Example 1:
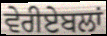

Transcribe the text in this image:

ਵੇਰੀਏਬਲਾਂ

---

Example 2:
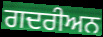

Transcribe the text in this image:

ਗਦਰੀਅਨ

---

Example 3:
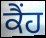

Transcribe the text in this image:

ਕੈਂਹ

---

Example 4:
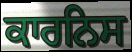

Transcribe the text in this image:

ਕਾਰਨਿਸ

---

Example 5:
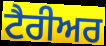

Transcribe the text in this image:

ਟੈਰੀਅਰ